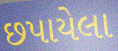
છપાયેલા